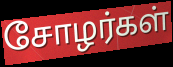
சோழர்கள்